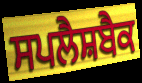
ਸਪਲੈਸ਼ਬੈਕ